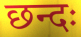
छन्दः